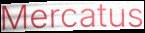
Mercatus